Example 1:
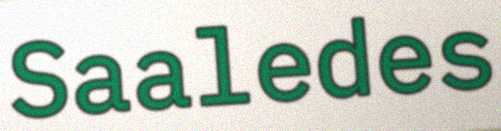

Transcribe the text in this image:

Saaledes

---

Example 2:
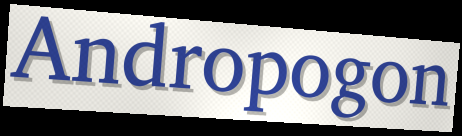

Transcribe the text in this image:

Andropogon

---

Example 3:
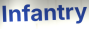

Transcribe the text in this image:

Infantry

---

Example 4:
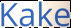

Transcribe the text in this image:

Kake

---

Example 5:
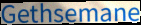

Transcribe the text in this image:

Gethsemane